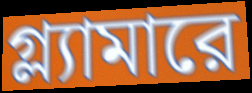
গ্ল্যামারে